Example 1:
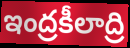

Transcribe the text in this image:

ఇంద్రకీలాద్రి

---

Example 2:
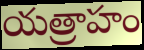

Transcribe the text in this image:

యత్రాహం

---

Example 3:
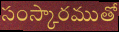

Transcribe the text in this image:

సంస్కారముతో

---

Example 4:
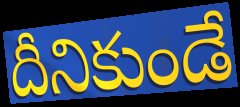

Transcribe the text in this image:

దీనికుండే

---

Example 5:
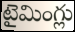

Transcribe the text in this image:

టైమింగ్లు